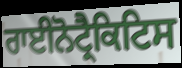
ਰਾਈਨੋਟ੍ਰੈਕਿਟਿਸ